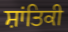
ਸ਼ਾਂਤਿਕੀ